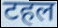
टहल